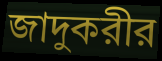
জাদুকরীর